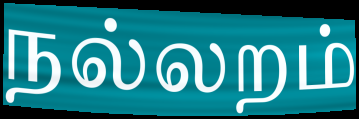
நல்லறம்